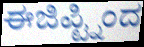
ಈಜಿಪ್ಟ್ನಿಂದ